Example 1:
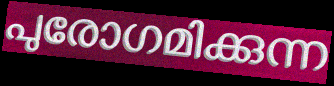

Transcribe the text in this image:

പുരോഗമിക്കുന്ന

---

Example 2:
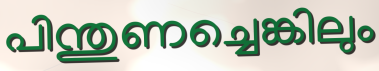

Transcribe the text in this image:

പിന്തുണച്ചെങ്കിലും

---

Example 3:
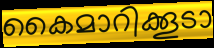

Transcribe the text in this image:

കൈമാറിക്കൂടാ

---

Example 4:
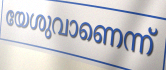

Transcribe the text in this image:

യേശുവാണെന്ന്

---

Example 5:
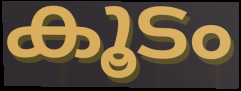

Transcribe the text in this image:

കൂടം